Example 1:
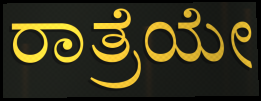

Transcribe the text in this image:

ರಾತ್ರೆಯೇ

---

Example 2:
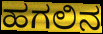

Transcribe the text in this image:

ಹಗಲಿನ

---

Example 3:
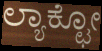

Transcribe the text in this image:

ಲ್ಯಾಕ್ಟೋ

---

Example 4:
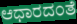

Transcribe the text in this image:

ಆಧಾರದಂತೆ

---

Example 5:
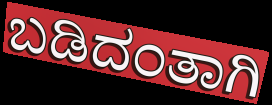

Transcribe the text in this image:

ಬಡಿದಂತಾಗಿ